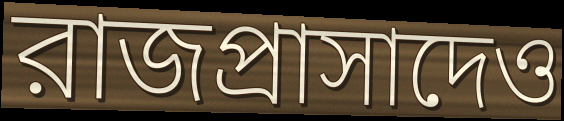
রাজপ্রাসাদেও